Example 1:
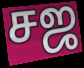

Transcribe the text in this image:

சஜ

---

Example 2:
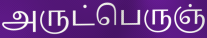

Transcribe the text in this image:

அருட்பெருஞ்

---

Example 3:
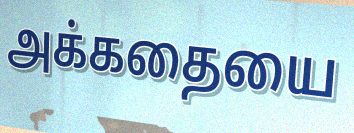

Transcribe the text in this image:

அக்கதையை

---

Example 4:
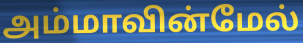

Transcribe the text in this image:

அம்மாவின்மேல்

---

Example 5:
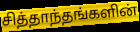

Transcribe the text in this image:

சித்தாந்தங்களின்